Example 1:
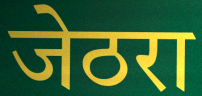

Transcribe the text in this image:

जेठरा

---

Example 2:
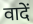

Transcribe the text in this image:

वादें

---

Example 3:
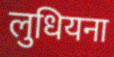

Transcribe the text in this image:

लुधियना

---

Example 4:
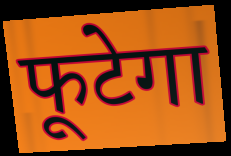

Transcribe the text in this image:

फूटेगा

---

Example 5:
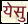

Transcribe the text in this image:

येसु